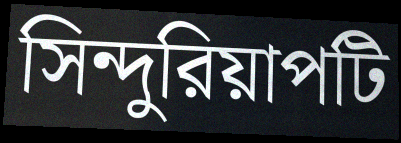
সিন্দুরিয়াপটি